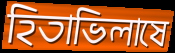
হিতাভিলাষে